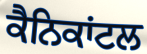
ਕੈਨਿਕਾਂਟਲ